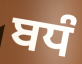
ਬਧੰ